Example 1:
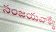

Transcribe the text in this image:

సంజయవాక్యే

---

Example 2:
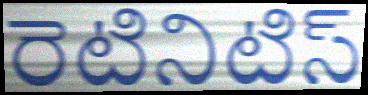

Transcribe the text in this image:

రెటినిటిస్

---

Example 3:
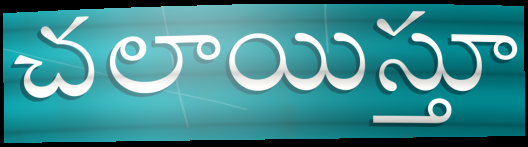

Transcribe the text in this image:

చలాయిస్తూ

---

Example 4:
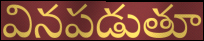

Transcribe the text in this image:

వినపడుతూ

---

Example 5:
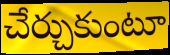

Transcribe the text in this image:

చేర్చుకుంటూ